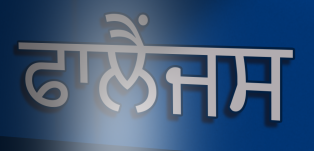
ਫਾਲੈਂਜਸ